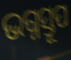
ଭଗ୍ନସ୍ତୂପ